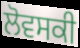
ਲੋਵਸਕੀ